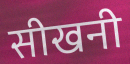
सीखनी